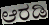
ಆರಡಿ